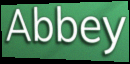
Abbey